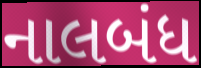
નાલબંધ